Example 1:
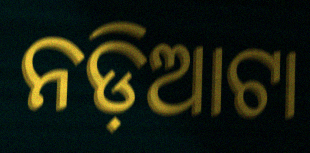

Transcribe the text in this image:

ନଡ଼ିଆଟା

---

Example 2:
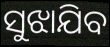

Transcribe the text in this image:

ସୁଝାଯିବ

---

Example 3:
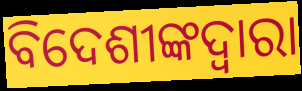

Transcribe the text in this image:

ବିଦେଶୀଙ୍କଦ୍ୱାରା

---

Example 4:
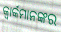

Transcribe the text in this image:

କ୍ୱାର୍କମାନଙ୍କର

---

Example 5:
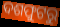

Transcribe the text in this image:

ଦଶଫୁଟରୁ